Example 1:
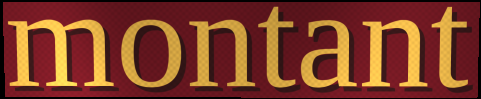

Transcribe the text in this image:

montant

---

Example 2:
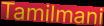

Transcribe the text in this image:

Tamilmani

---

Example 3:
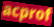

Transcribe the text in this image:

acprof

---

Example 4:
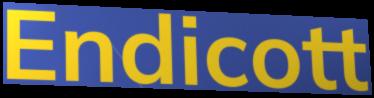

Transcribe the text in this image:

Endicott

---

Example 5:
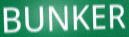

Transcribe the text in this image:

BUNKER